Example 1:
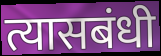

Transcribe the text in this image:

त्यासबंधी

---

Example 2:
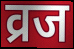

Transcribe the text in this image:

व्रज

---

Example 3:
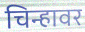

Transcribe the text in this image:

चिन्हावर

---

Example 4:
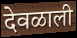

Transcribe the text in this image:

देवळाली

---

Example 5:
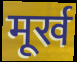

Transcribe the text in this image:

मूर्ख